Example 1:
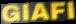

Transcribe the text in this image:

GIAFI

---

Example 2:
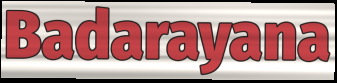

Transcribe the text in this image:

Badarayana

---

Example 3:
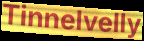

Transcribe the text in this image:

Tinnelvelly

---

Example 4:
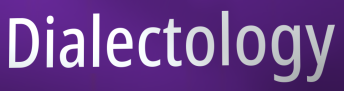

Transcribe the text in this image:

Dialectology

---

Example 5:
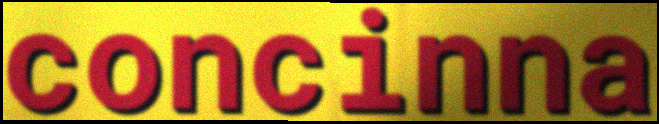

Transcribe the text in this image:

concinna